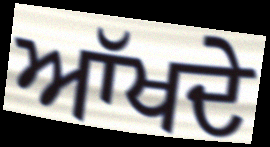
ਆੱਖਦੇ